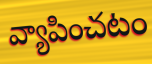
వ్యాపించటం